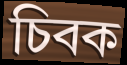
চিবক